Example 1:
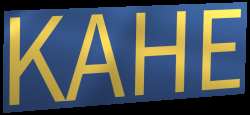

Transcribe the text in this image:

KAHE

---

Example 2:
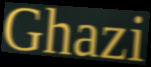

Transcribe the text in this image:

Ghazi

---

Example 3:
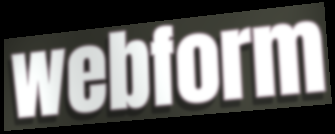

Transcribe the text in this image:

webform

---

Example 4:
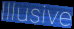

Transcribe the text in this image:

Illusive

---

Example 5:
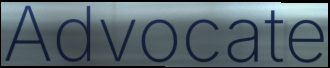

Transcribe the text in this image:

Advocate